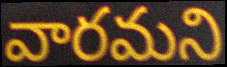
వారమని